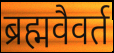
ब्रह्मवैवर्त